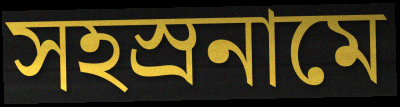
সহস্ৰনামে